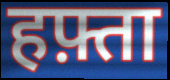
हफ़्ता